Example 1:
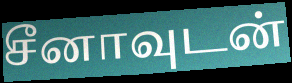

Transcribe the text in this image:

சீனாவுடன்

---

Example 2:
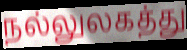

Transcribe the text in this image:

நல்லுலகத்து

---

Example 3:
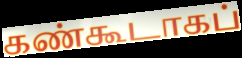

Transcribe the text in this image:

கண்கூடாகப்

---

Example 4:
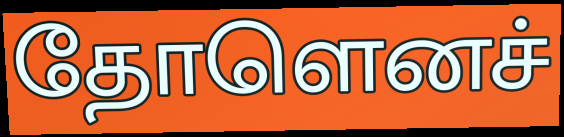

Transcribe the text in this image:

தோளெனச்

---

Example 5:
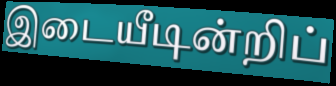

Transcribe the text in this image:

இடையீடின்றிப்